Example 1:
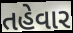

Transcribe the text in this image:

તહેવાર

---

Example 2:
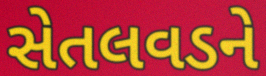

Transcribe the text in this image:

સેતલવડને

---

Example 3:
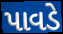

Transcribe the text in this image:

પાવડે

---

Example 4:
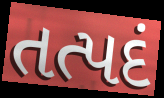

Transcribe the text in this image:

તત્પદં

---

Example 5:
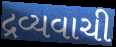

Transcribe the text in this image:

દ્રવ્યવાચી